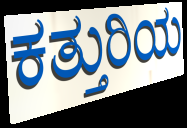
ಕತ್ತುರಿಯ